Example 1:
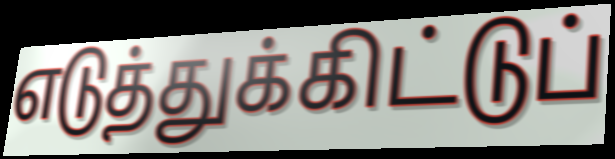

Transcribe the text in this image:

எடுத்துக்கிட்டுப்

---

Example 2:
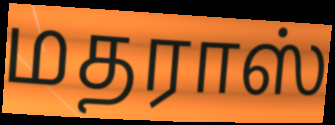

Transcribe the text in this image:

மதராஸ்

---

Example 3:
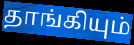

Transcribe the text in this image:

தாங்கியும்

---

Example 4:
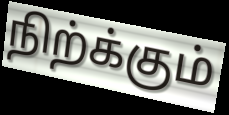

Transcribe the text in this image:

நிற்க்கும்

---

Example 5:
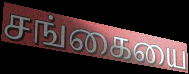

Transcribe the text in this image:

சங்கையை